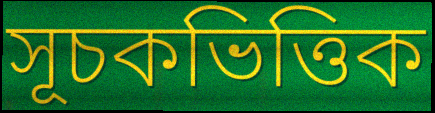
সূচকভিত্তিক